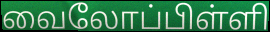
வைலோப்பிள்ளி